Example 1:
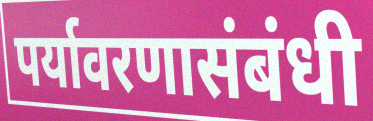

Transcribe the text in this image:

पर्यावरणासंबंधी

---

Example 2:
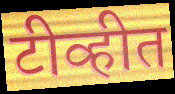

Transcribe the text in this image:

टीव्हीत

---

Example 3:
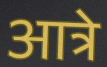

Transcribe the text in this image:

आत्रे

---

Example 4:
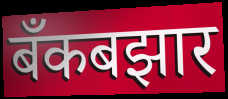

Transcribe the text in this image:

बँकबझार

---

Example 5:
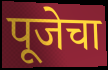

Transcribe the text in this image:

पूजेचा